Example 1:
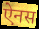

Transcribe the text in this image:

ऐनस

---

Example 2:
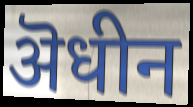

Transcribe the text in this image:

ऄधीन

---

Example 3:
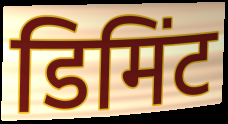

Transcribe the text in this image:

डिमिंट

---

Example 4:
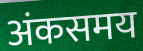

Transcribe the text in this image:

अंकसमय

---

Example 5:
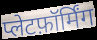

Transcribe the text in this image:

प्लेटफ़ॉर्मिंग